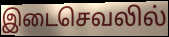
இடைசெவலில்